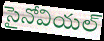
సైనోవియల్